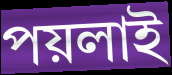
পয়লাই